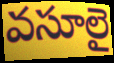
వసూలై